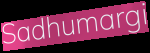
Sadhumargi